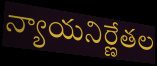
న్యాయనిర్ణేతల